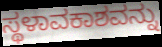
ಸ್ಥಳಾವಕಾಶವನ್ನು